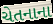
ચેતનાના